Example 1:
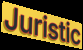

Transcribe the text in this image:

Juristic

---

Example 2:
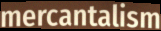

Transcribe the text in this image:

mercantalism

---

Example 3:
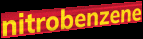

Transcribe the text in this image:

nitrobenzene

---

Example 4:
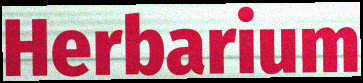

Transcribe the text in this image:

Herbarium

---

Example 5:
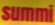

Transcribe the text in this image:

summi